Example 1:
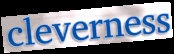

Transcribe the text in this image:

cleverness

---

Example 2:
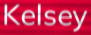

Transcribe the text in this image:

Kelsey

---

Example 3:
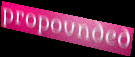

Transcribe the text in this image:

propounded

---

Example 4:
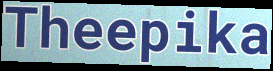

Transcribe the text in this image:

Theepika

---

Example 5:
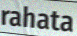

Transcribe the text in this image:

rahata